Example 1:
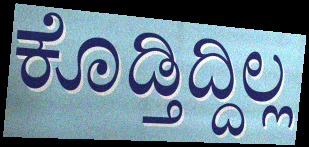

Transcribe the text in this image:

ಕೊಡ್ತಿದ್ದಿಲ್ಲ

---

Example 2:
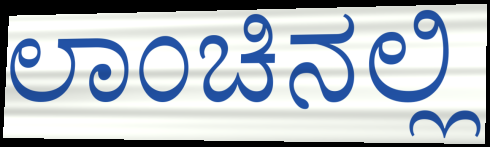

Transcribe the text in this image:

ಲಾಂಚಿನಲ್ಲಿ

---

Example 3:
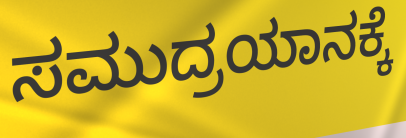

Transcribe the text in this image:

ಸಮುದ್ರಯಾನಕ್ಕೆ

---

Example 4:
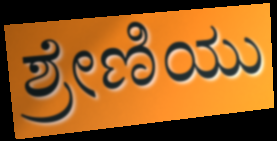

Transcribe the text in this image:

ಶ್ರೇಣಿಯು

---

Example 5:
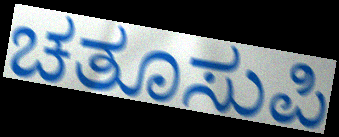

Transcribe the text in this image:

ಚತೂಸುಪಿ